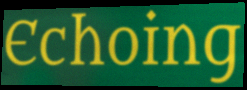
Echoing